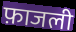
फ़ाजली